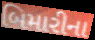
બિમારીના